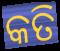
କତି